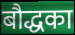
बौद्धका